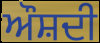
ਔਸ਼ਦੀ